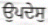
ਉਪਦੇਸੁ